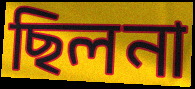
ছিলনা